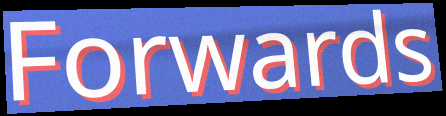
Forwards